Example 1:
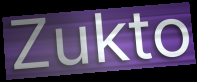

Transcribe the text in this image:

Zukto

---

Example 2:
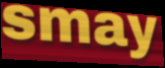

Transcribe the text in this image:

smay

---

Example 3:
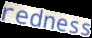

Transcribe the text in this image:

redness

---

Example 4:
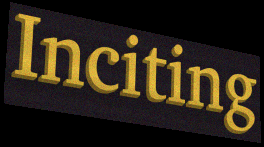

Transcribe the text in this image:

Inciting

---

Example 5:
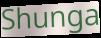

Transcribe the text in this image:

Shunga